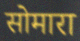
सोमारा